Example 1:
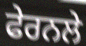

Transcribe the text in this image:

ਫੇਰਨਲੇ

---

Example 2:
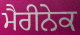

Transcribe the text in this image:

ਮੈਰੀਨੇਕ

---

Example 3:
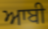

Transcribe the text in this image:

ਆਬੀ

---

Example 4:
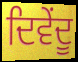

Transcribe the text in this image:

ਦਿਵੇਂਦੂ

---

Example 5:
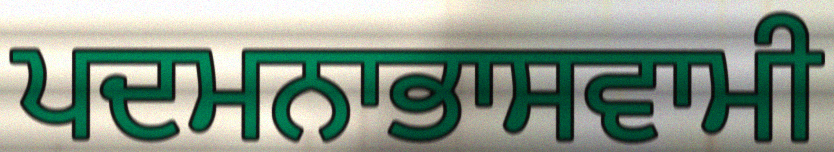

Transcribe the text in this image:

ਪਦਮਨਾਭਾਸਵਾਮੀ